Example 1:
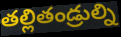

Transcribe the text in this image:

తల్లితండ్రుల్ని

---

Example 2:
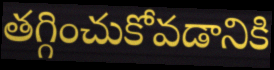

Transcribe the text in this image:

తగ్గించుకోవడానికి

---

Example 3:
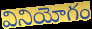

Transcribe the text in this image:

వినియోగం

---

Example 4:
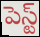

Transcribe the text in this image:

పెస్ట్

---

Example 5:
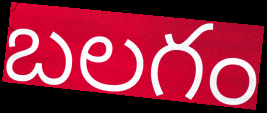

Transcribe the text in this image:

బలగం